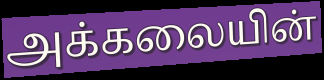
அக்கலையின்